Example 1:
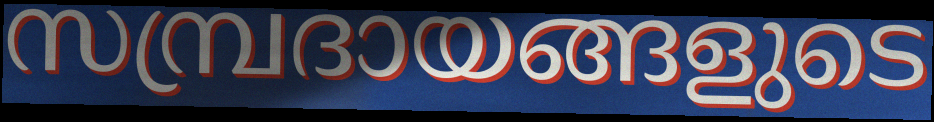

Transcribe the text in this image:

സമ്പ്രദായങ്ങളുടെ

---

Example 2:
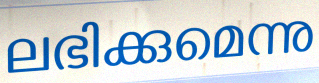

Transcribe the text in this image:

ലഭിക്കുമെന്നു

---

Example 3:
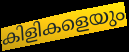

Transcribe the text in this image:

കിളികളെയും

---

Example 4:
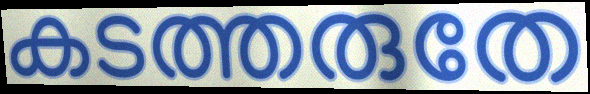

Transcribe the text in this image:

കടത്തരുതേ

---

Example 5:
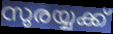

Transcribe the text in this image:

സുരയ്യക്ക്